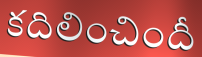
కదిలించిందీ